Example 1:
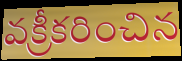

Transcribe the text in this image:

వక్రీకరించిన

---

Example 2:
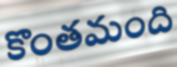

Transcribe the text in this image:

కొంతమంది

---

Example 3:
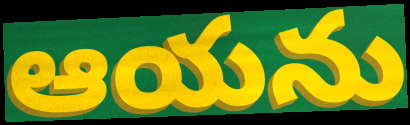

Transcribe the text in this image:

ఆయను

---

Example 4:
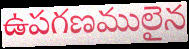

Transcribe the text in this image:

ఉపగణములైన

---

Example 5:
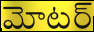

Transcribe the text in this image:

మోటర్